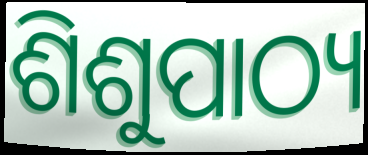
ଶିଶୁପାଠ୍ୟ